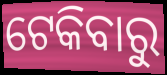
ଟେକିବାରୁ